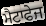
ਮੈਟਾਫੇਜ